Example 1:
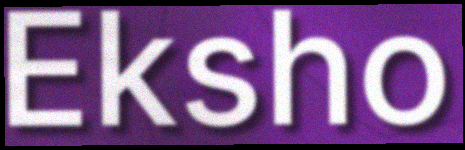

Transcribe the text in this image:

Eksho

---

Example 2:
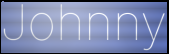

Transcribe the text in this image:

Johnny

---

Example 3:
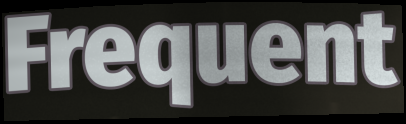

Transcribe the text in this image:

Frequent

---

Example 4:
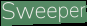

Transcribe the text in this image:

Sweeper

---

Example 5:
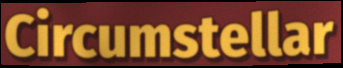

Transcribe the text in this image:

Circumstellar